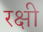
रक्षी